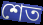
শেত